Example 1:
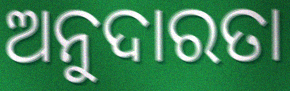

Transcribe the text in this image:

ଅନୁଦାରତା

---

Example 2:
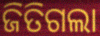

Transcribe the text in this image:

ଜିତିଗଲା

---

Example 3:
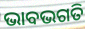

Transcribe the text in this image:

ଭାବଭଗତି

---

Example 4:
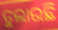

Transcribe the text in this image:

ତୁଲାଉଛି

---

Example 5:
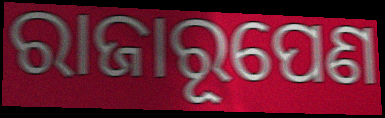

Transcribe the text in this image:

ରାଜାରୂପେଣ